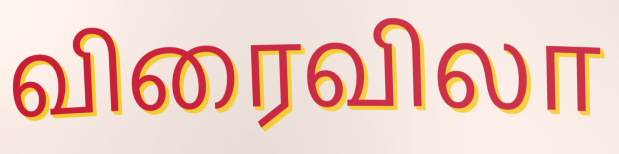
விரைவிலா